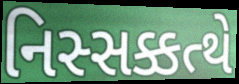
નિસ્સક્કત્થે